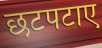
छटपटाए